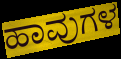
ಹಾವುಗಳ